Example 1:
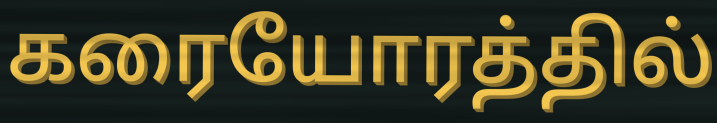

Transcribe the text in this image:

கரையோரத்தில்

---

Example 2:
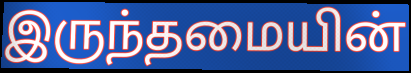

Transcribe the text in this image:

இருந்தமையின்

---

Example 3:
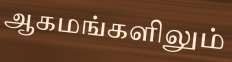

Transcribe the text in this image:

ஆகமங்களிலும்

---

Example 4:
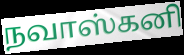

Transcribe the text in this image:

நவாஸ்கனி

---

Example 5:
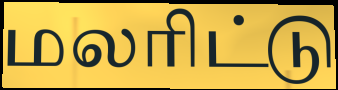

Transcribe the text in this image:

மலரிட்டு